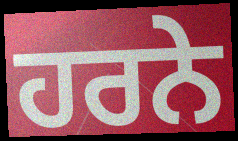
ਹਰਨੇ